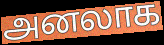
அனலாக